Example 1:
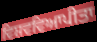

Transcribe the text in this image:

ਵਿਸ਼ਵਵਿਆਪੀਤਾ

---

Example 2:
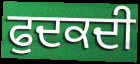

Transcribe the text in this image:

ਫੁਦਕਦੀ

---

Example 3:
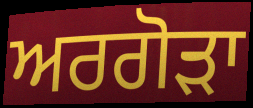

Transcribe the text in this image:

ਅਰਗੋੜਾ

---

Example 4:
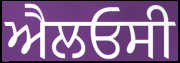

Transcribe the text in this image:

ਐਲਓਸੀ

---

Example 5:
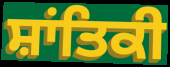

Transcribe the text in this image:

ਸ਼ਾਂਤਿਕੀ